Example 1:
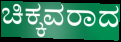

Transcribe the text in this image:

ಚಿಕ್ಕವರಾದ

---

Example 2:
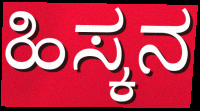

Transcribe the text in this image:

ಹಿಸ್ಕನ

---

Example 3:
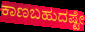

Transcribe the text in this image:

ಕಾಣಬಹುದಷ್ಟೇ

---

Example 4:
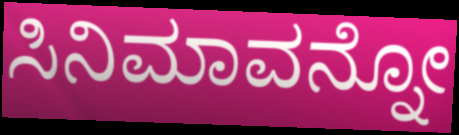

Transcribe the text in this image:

ಸಿನಿಮಾವನ್ನೋ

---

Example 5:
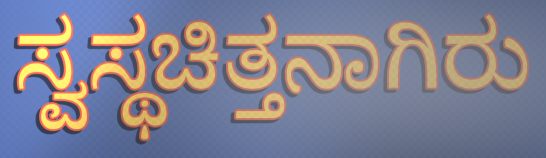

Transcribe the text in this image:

ಸ್ವಸ್ಥಚಿತ್ತನಾಗಿರು